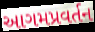
આગમપ્રવર્તન